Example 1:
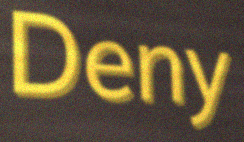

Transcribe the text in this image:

Deny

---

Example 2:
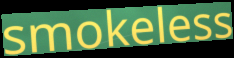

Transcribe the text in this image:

smokeless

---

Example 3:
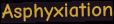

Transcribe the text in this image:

Asphyxiation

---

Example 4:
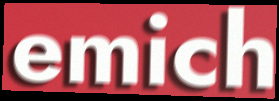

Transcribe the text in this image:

emich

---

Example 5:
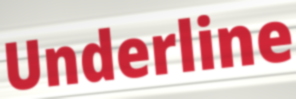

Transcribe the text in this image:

Underline